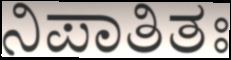
ನಿಪಾತಿತಃ